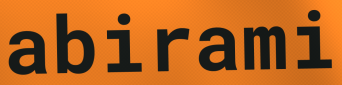
abirami